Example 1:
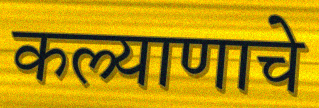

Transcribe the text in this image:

कल्याणाचे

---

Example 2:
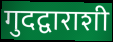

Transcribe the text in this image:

गुदद्वाराशी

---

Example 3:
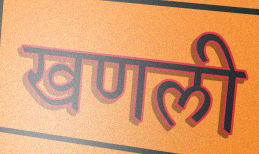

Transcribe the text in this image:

खणली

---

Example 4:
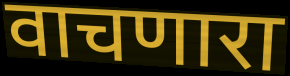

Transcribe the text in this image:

वाचणारा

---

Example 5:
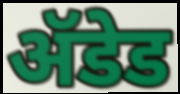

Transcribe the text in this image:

ॲडेड